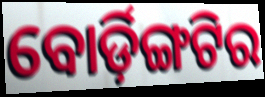
ବୋର୍ଡ଼ିଙ୍ଗଟିର